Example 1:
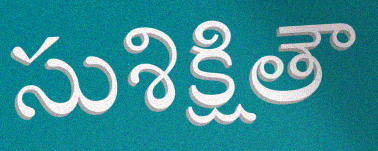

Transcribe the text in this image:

సుశిక్షితౌ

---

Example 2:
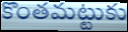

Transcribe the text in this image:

కొంతమట్టుకు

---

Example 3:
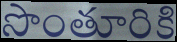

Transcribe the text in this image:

సొంతూరికి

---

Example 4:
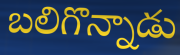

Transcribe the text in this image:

బలిగొన్నాడు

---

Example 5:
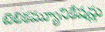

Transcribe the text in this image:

టెలికమ్యూనికేషన్లు